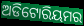
ଅଡିଟୋରିୟମର